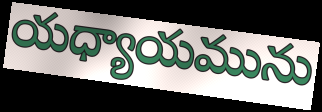
యధ్యాయమును